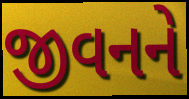
જીવનને